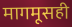
मागमूसही